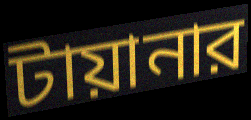
টায়ানার